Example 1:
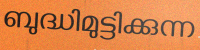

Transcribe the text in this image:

ബുദ്ധിമുട്ടിക്കുന്ന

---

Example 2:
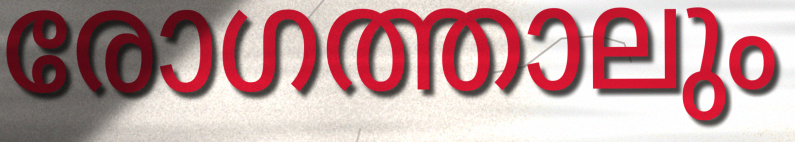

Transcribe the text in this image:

രോഗത്താലും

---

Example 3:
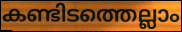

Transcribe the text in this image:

കണ്ടിടത്തെല്ലാം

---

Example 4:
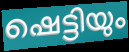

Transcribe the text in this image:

ഷെട്ടിയും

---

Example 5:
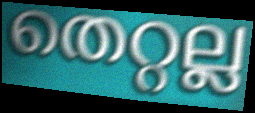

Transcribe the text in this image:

തെറ്റല്ല